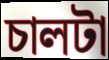
চালটা